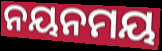
ନୟନମୟ